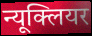
न्‍यूक्लियर